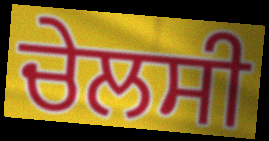
ਚੇਲਸੀ